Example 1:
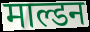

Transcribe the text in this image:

माल्डन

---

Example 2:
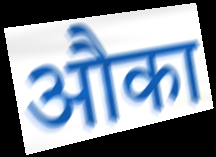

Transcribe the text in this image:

औका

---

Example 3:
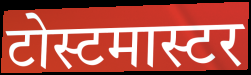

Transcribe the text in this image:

टोस्टमास्टर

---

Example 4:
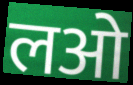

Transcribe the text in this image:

लओ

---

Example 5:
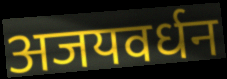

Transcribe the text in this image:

अजयवर्धन